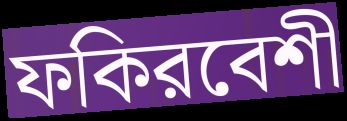
ফকিরবেশী